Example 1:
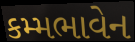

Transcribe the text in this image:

કમ્મભાવેન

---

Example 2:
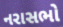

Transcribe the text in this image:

નરાસભો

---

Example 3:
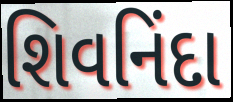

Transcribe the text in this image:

શિવનિંદા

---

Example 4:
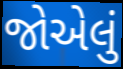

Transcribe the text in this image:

જોએલું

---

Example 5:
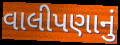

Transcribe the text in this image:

વાલીપણાનું